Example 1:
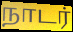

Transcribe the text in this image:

நாடர்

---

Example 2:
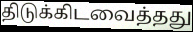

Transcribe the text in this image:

திடுக்கிடவைத்தது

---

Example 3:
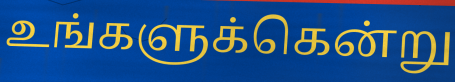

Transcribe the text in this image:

உங்களுக்கென்று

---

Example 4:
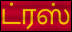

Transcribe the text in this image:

ட்ரஸ்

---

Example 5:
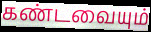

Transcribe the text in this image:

கண்டவையும்